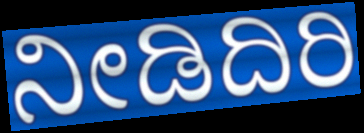
ನೀಡಿದಿರಿ